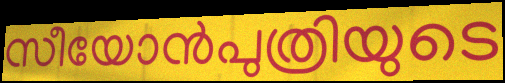
സീയോൻപുത്രിയുടെ